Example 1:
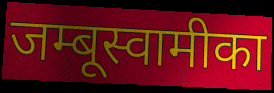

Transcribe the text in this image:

जम्बूस्वामीका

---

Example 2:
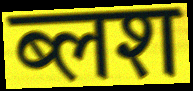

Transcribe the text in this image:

ब्लश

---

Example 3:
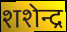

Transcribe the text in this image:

शशेन्द्र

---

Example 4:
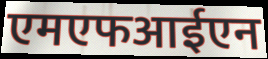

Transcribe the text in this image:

एमएफआईएन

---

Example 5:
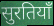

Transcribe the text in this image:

सुरतियाँ